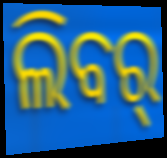
ଲିବର୍